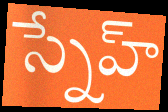
స్నేహ్